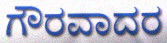
ಗೌರವಾದರ